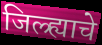
जिल्ह्याचे